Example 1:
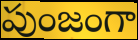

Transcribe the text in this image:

పుంజంగా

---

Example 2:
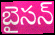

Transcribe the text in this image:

బైసన్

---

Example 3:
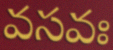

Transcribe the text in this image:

వసవః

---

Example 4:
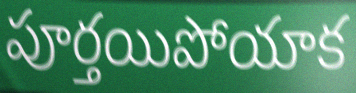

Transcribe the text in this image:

పూర్తయిపోయాక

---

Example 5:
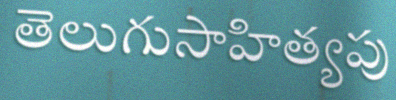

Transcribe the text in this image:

తెలుగుసాహిత్యపు